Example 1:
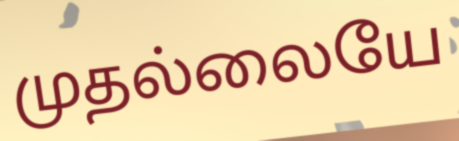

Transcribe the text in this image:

முதல்லையே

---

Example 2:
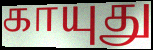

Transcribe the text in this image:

காயுது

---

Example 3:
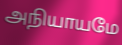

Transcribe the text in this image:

அநியாயமே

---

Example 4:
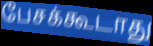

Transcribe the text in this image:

பேசக்கூடாது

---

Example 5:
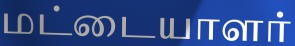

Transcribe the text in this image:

மட்டையாளர்